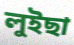
লুইছা